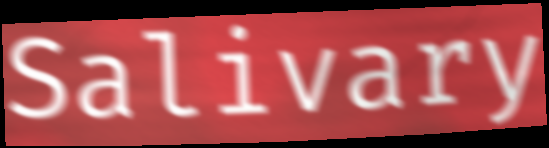
Salivary